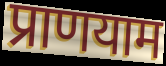
प्राणयाम